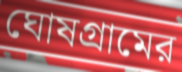
ঘোষগ্রামের